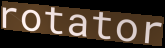
rotator